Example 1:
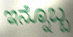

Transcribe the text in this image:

ಇನ್ನೊಬ್ಬ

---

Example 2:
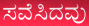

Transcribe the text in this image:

ಸವೆಸಿದವು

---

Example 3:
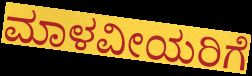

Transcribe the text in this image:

ಮಾಳವೀಯರಿಗೆ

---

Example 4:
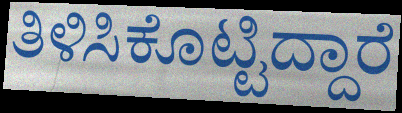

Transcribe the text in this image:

ತಿಳಿಸಿಕೊಟ್ಟಿದ್ದಾರೆ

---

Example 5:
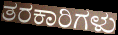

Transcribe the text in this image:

ತರಕಾರಿಗಳು